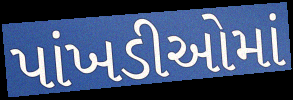
પાંખડીઓમાં